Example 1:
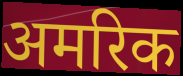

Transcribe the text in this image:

अमरिक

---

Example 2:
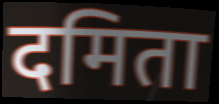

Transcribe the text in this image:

दमिता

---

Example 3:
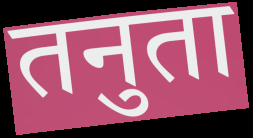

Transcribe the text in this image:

तनुता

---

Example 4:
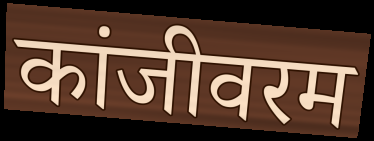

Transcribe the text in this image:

कांजीवरम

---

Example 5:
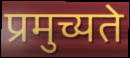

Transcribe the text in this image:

प्रमुच्यते